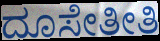
ದೂಸೇತೀತಿ